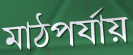
মাঠপর্যায়